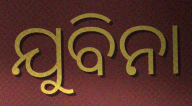
ଯୁବିନା